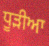
ਧੂੜੀਆ